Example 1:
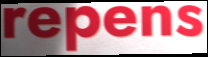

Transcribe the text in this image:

repens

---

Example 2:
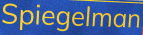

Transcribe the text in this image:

Spiegelman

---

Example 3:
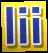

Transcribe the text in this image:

lii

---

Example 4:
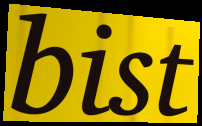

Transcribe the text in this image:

bist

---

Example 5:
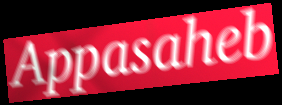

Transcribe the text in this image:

Appasaheb